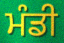
ਮੰਡੀ